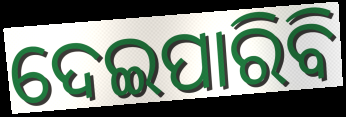
ଦେଇପାରିବି